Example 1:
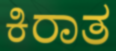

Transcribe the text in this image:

ಕಿರಾತ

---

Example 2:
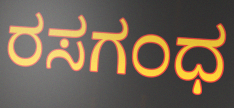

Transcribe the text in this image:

ರಸಗಂಧ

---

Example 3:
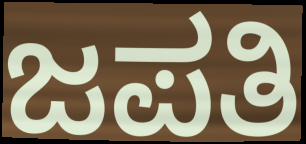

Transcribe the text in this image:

ಜಪತಿ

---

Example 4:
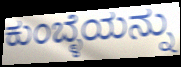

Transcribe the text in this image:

ಕುಂಬ್ಳೆಯನ್ನು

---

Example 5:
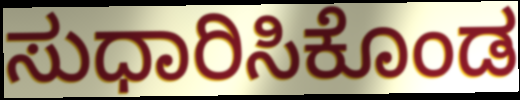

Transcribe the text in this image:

ಸುಧಾರಿಸಿಕೊಂಡ